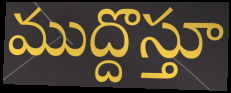
ముద్దొస్తూ